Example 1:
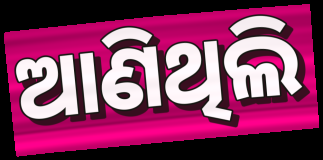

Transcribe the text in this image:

ଆଣିଥିଲି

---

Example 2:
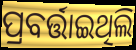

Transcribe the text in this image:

ପ୍ରବର୍ତ୍ତାଇଥିଲି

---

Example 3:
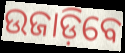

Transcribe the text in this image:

ଉଜାଡ଼ିବେ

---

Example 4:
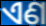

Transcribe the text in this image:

ଏଣ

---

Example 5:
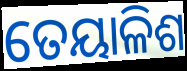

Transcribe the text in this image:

ତେୟାଳିଶ